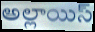
అల్లాయిస్